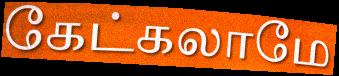
கேட்கலாமே